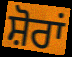
ਸ਼ੋਰਾਂ